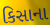
કિસાના